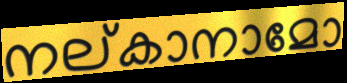
നല്കാനാമോ